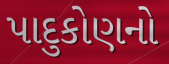
પાદુકોણનો